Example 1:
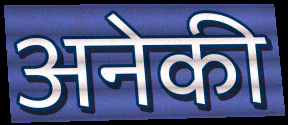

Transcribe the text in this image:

अनेकी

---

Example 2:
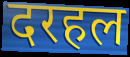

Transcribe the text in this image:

दरहल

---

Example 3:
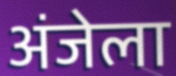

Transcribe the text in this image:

अंजेला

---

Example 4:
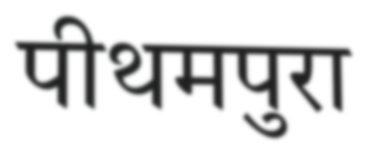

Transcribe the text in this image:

पीथमपुरा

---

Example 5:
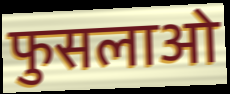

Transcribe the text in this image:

फुसलाओ